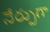
నేర్పుగా